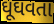
ઘૂઘવતા